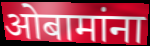
ओबामांना